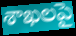
శాఖలపై